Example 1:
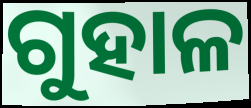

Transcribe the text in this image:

ଗୁହାଳ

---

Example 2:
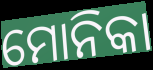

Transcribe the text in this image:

ମୋନିକା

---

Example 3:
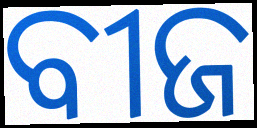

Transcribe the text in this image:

ବୀଜ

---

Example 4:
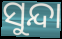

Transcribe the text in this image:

ସୁନ୍ଦା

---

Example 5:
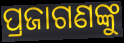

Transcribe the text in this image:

ପ୍ରଜାଗଣଙ୍କୁ